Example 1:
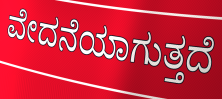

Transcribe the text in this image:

ವೇದನೆಯಾಗುತ್ತದೆ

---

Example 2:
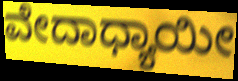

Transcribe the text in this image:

ವೇದಾಧ್ಯಾಯೀ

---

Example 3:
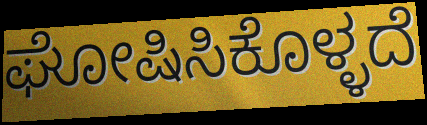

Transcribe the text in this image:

ಘೋಷಿಸಿಕೊಳ್ಳದೆ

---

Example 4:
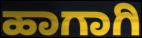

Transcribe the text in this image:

ಹಾಗಾಗಿ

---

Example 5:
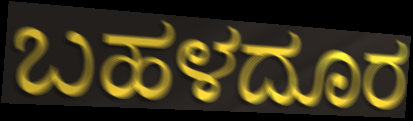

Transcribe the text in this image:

ಬಹಳದೂರ